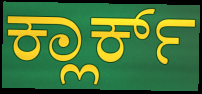
ಕ್ಲಾರ್ಕ್